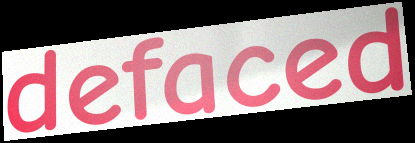
defaced